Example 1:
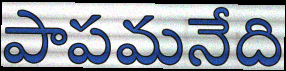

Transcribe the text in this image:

పాపమనేది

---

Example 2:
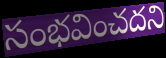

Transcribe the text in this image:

సంభవించదని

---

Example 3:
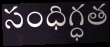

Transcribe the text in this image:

సంధిగ్ధత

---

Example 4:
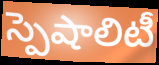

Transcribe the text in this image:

స్పెషాలిటీ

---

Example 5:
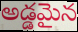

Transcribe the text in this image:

అడ్డమైన